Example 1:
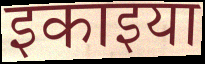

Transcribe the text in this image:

इकाइया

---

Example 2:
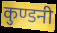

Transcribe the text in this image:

कुण्डनी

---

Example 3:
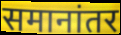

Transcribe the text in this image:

समानांतर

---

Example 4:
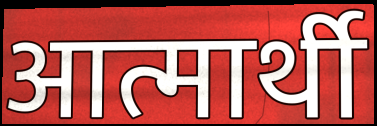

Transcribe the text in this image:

आत्मार्थी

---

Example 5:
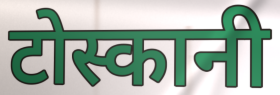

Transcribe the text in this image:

टोस्कानी